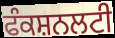
ਫੰਕਸ਼ਨਲਟੀ